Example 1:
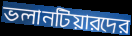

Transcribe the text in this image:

ভলানটিয়ারদের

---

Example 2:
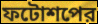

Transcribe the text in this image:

ফটোশপের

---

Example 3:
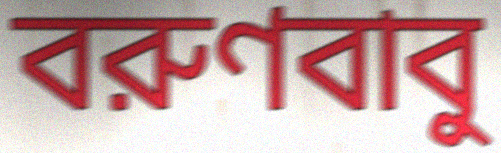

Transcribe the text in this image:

বরুণবাবু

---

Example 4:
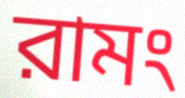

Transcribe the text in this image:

রামং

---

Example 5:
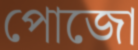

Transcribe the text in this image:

পোজো